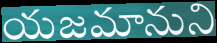
యజమానుని